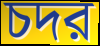
চদর